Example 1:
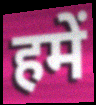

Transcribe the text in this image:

हमें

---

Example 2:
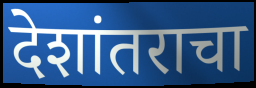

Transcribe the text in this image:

देशांतराचा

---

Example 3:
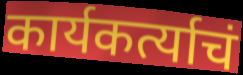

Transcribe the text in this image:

कार्यकर्त्याचं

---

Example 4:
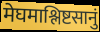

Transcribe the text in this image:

मेघमाश्लिष्टसानुं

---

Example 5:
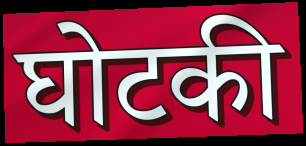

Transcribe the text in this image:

घोटकी